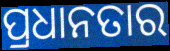
ପ୍ରଧାନତାର